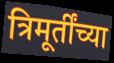
त्रिमूर्तींच्या